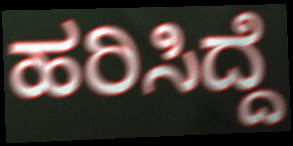
ಹರಿಸಿದ್ದೆ